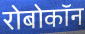
रोबोकॉन